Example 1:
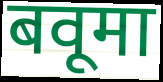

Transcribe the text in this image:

बवूमा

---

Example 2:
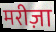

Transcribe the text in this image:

मरीज़ा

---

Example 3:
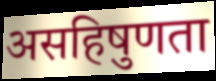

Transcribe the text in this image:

असहिषुणता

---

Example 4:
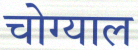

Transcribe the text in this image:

चोग्याल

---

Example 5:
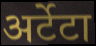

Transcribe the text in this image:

अर्टेटा